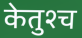
केतुश्च